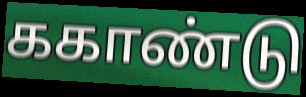
ககாண்டு